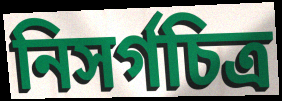
নিসর্গচিত্র